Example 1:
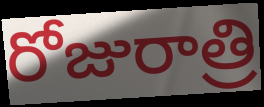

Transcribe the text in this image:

రోజురాత్రి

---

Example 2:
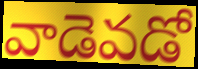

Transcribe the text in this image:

వాడెవడో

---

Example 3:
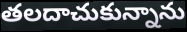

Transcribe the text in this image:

తలదాచుకున్నాను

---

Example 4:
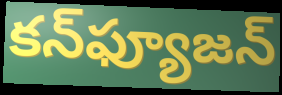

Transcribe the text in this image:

కన్‌ఫ్యూజన్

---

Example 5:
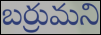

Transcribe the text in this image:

బర్రుమని